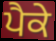
ਪੈਕੇ